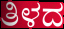
ತಿಳದ